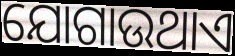
ଯୋଗାଉଥାଏ